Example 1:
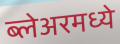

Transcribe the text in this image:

ब्लेअरमध्ये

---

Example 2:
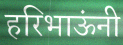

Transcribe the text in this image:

हरिभाऊंनी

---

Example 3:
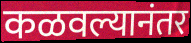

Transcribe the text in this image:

कळवल्यानंतर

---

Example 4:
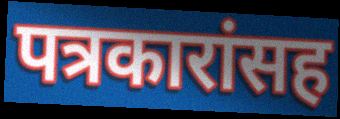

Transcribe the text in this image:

पत्रकारांसह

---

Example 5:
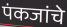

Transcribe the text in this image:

पंकजांचे